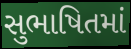
સુભાષિતમાં